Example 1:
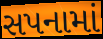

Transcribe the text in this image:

સપનામાં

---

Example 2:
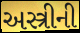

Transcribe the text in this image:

અસ્ત્રીની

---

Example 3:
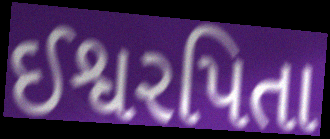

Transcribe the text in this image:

ઈશ્વરપિતા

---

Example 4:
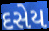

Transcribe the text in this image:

દસેય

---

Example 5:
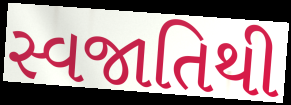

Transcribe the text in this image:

સ્વજાતિથી